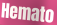
Hemato